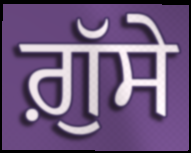
ਗ਼ੁੱਸੇ